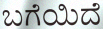
ಬಗೆಯಿದೆ